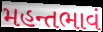
મહન્તભાવં